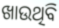
ଖାଉଥିବି